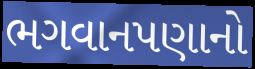
ભગવાનપણાનો